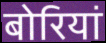
बोरियां